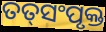
ତତ୍‌ସଂପୃକ୍ତ